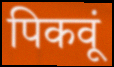
पिकवूं